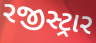
રજીસ્ટ્રાર